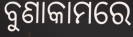
ବୁଣାକାମରେ